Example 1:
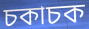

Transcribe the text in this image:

চকাচক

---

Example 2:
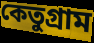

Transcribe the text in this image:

কেতুগ্রাম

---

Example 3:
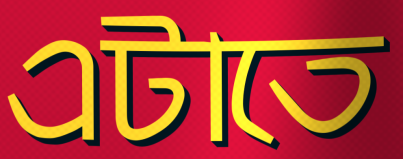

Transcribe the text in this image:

এটাতে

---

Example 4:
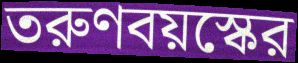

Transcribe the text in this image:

তরুণবয়স্কের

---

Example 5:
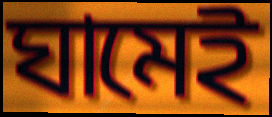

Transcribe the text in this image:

ঘামেই